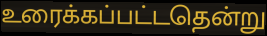
உரைக்கப்பட்டதென்று